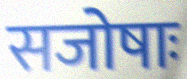
सजोषाः